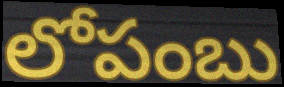
లోపంబు